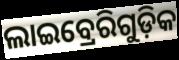
ଲାଇବ୍ରେରିଗୁଡ଼ିକ